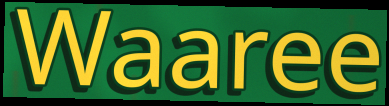
Waaree